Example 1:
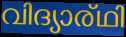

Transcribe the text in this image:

വിദ്യാര്ഥി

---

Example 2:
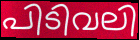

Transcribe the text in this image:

പിടിവലി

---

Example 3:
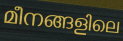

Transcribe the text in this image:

മീനങ്ങളിലെ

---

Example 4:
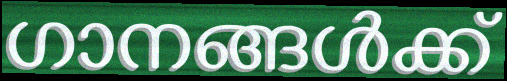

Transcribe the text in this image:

ഗാനങ്ങൾക്ക്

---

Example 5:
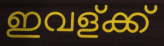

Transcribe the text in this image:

ഇവള്ക്ക്